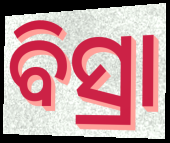
ବିସ୍ରା